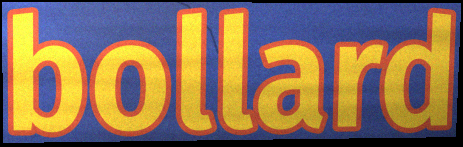
bollard